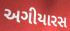
અગીયારસ